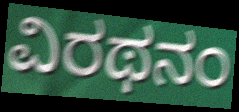
ವಿರಥನಂ